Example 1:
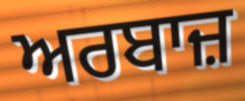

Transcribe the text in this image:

ਅਰਬਾਜ਼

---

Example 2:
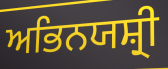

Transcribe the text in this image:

ਅਭਿਨਯਸ਼੍ਰੀ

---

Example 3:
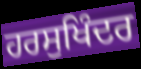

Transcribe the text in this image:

ਹਰਸੁਖਿੰਦਰ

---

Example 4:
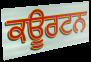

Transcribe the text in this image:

ਕਊਰਟਨ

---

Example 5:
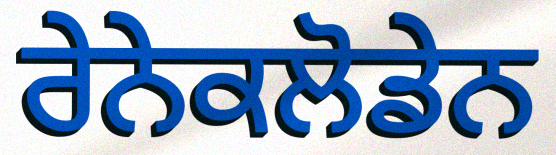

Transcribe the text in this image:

ਰੇਨੇਕਲੋਡੇਨ